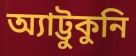
অ্যাট্টুকুনি